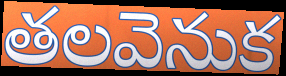
తలవెనుక